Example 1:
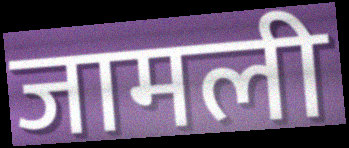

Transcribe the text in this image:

जामली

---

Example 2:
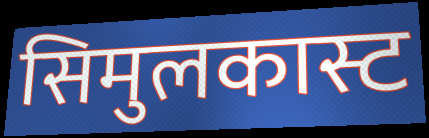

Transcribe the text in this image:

सिमुलकास्ट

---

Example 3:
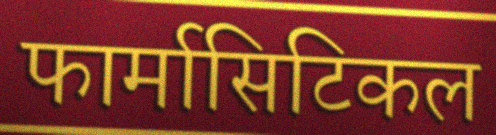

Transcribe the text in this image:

फार्मासिटिकल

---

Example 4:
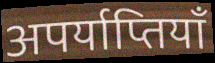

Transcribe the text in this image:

अपर्याप्तियाँ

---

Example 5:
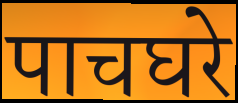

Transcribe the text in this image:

पाचघरे